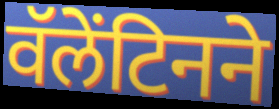
वॅलेंटिनने